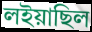
লইয়াছিল